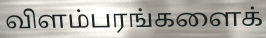
விளம்பரங்களைக்